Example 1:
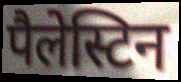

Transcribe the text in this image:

पैलेस्टिन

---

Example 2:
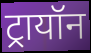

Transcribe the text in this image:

ट्रायॉन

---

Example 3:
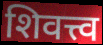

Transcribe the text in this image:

शिवत्त्व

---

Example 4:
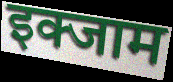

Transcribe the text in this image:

इक्जाम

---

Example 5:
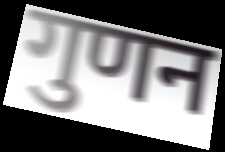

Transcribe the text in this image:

गुणन